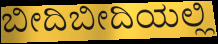
ಬೀದಿಬೀದಿಯಲ್ಲಿ